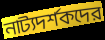
নাট্যদর্শকদের